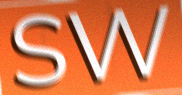
SW